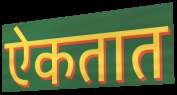
ऐकतात